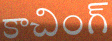
కాచింగ్